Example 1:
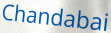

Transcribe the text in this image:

Chandabai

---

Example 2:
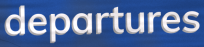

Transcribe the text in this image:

departures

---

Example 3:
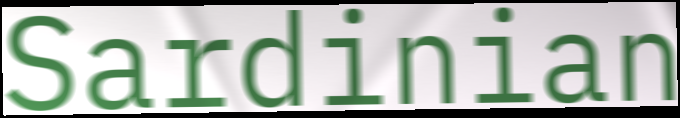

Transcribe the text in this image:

Sardinian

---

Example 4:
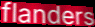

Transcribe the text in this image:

flanders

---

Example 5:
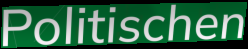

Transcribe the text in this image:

Politischen